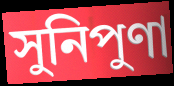
সুনিপুণা